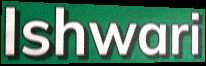
Ishwari